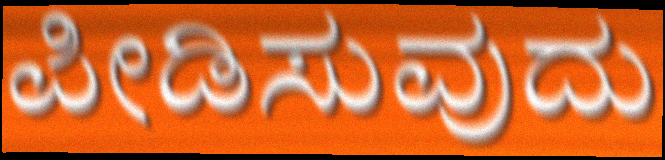
ಪೀಡಿಸುವುದು